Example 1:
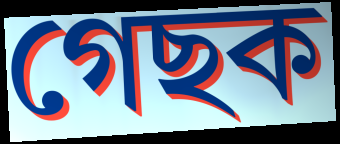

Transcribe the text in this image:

গেছক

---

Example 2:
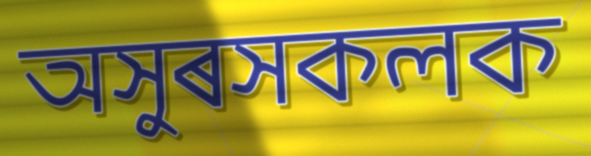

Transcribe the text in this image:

অসুৰসকলক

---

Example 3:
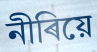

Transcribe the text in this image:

নীৰিয়ে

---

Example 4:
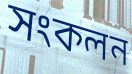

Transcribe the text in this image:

সংকলন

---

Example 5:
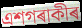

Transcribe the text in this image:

এশগৰাকীৰ